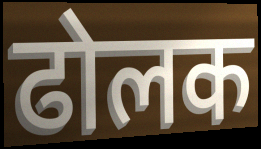
ढोलक